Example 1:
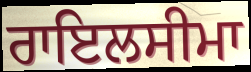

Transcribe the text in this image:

ਰਾਇਲਸੀਮਾ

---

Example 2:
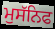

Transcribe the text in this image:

ਮੁਸੱਨਿਫ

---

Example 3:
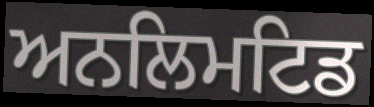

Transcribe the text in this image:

ਅਨਲਿਮਟਿਡ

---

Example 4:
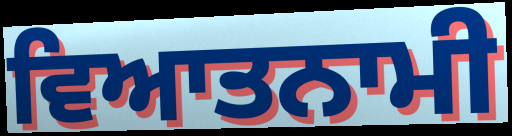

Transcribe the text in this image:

ਵਿਆਤਨਾਮੀ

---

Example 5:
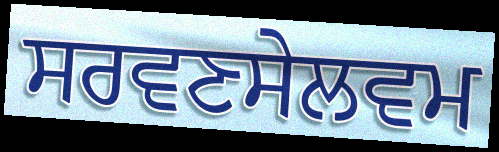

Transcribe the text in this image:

ਸਰਵਣਸੇਲਵਮ